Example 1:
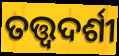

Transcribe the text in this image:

ତତ୍ତ୍ଵଦର୍ଶୀ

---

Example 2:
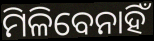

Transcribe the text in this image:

ମିଳିବେନାହିଁ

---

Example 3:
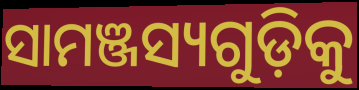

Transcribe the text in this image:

ସାମଞ୍ଜସ୍ୟଗୁଡ଼ିକୁ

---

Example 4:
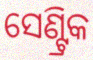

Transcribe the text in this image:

ସେଣ୍ଟ୍ରିକ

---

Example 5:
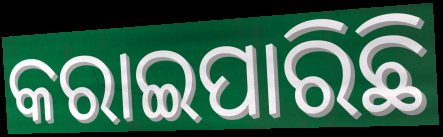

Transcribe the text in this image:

କରାଇପାରିଛି